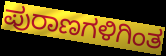
ಪುರಾಣಗಳಿಗಿಂತ